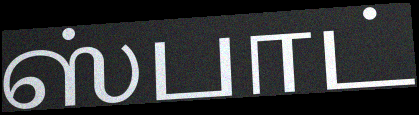
ஸ்பாட்